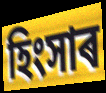
হিংসাৰ